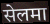
सेलमा